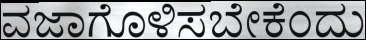
ವಜಾಗೊಳಿಸಬೇಕೆಂದು